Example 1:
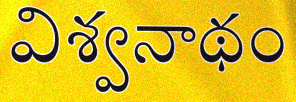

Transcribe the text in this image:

విశ్వనాథం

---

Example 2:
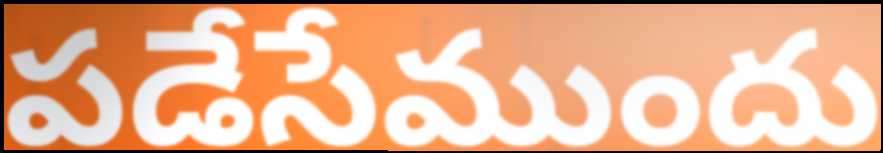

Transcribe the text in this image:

పడేసేముందు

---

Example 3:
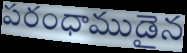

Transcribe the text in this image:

పరంధాముడైన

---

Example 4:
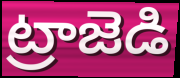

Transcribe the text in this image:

ట్రాజెడి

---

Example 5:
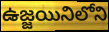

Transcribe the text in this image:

ఉజ్జయినిలోని